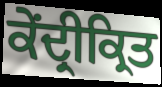
ਕੇਂਦ੍ਰੀਕ੍ਰਿਤ